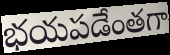
భయపడేంతగా